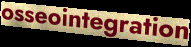
osseointegration